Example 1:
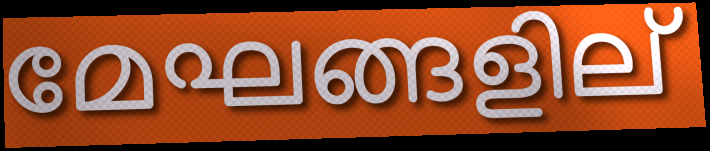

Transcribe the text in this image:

മേഘങ്ങളില്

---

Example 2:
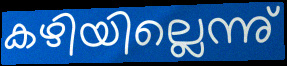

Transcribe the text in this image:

കഴിയില്ലെന്നു്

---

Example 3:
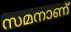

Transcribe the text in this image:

സമനാണ്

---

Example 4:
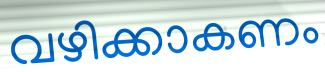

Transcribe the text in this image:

വഴിക്കാകണം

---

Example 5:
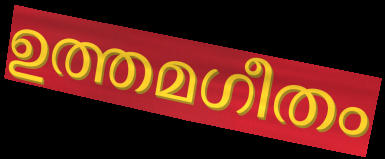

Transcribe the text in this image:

ഉത്തമഗീതം